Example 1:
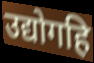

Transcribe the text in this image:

उद्योगहि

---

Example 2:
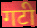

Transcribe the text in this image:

गटी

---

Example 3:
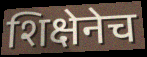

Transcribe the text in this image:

शिक्षेनेच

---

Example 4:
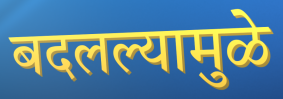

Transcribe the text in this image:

बदलल्यामुळे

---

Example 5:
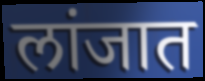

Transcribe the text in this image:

लांजात